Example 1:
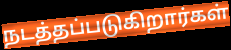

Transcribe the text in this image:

நடத்தப்படுகிறார்கள்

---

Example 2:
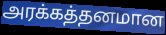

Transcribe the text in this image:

அரக்கத்தனமான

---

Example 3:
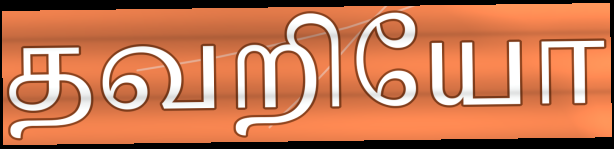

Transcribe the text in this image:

தவறியோ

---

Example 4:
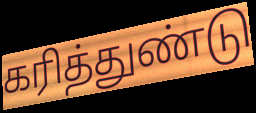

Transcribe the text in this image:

கரித்துண்டு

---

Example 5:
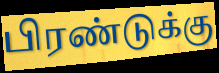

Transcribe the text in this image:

பிரண்டுக்கு